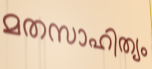
മതസാഹിത്യം